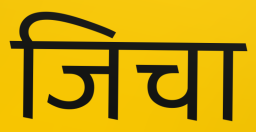
जिचा